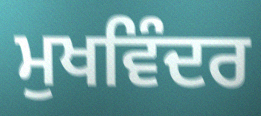
ਮੁਖਵਿੰਦਰ